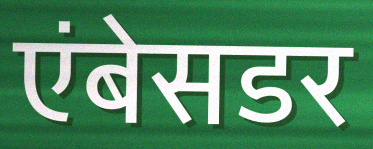
एंबेसडर